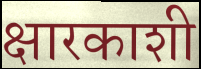
क्षारकाशी